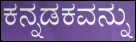
ಕನ್ನಡಕವನ್ನು